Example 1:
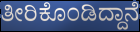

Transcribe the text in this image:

ತೀರಿಕೊಂಡಿದ್ದಾನೆ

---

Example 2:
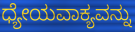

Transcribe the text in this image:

ಧ್ಯೇಯವಾಕ್ಯವನ್ನು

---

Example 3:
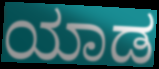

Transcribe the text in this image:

ಯಾಡ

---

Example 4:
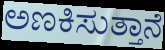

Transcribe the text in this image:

ಅಣಕಿಸುತ್ತಾನೆ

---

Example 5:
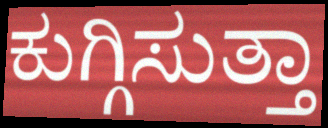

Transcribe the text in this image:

ಕುಗ್ಗಿಸುತ್ತಾ